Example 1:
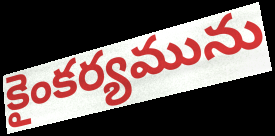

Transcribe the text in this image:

కైంకర్యమును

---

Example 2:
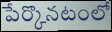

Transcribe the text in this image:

పేర్కొనటంలో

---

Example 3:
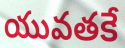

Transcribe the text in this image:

యువతకే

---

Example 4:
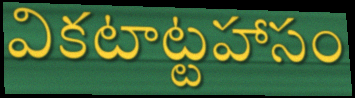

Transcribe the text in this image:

వికటాట్టహాసం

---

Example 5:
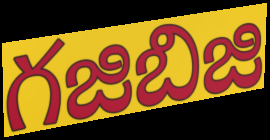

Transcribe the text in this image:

గజిబిజి